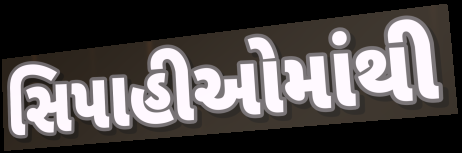
સિપાહીઓમાંથી